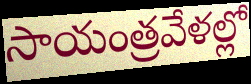
సాయంత్రవేళల్లో